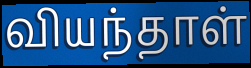
வியந்தாள்